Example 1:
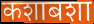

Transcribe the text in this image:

कशाबशा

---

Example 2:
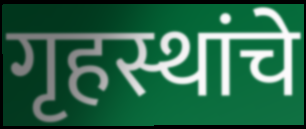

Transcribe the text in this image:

गृहस्थांचे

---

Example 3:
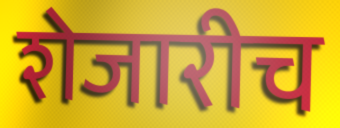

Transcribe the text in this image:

शेजारीच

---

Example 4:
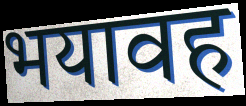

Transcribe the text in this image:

भयावह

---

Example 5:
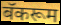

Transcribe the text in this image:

बॅकरूम